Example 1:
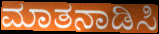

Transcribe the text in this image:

ಮಾತನಾಡಿಸಿ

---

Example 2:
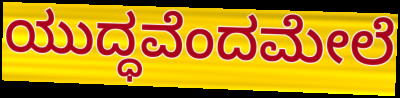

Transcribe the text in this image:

ಯುದ್ಧವೆಂದಮೇಲೆ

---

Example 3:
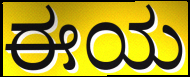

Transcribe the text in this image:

ಈಯ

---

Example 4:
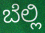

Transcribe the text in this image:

ಬೆಲ್ಲಿ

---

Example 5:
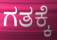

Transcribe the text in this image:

ಗತಕ್ಕೆ